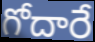
గోదారే